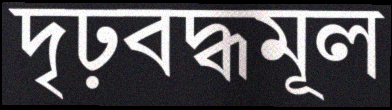
দৃঢ়বদ্ধমূল